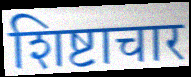
शिष्टाचार